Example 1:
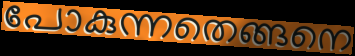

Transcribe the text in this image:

പോകുന്നതെങ്ങനെ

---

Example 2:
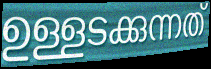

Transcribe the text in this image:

ഉള്ളടക്കുന്നത്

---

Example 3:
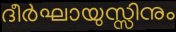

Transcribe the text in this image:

ദീർഘായുസ്സിനും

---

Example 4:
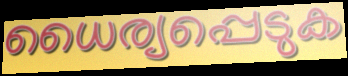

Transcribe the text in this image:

ധൈര്യപ്പെടുക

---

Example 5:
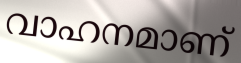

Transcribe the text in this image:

വാഹനമാണ്